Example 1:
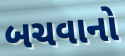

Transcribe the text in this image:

બચવાનો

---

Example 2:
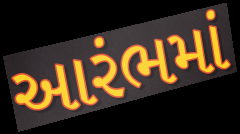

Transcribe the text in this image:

આરંભમાં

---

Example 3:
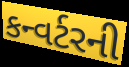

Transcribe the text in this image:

કન્વર્ટરની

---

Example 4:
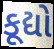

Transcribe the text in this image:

કૂદ્યો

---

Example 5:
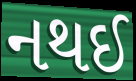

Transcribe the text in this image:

નથઈ